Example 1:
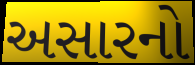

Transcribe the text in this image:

અસારનો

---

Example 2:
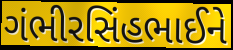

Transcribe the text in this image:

ગંભીરસિંહભાઈને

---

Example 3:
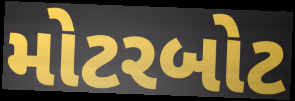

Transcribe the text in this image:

મોટરબોટ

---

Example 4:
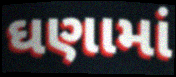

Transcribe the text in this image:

ઘણામાં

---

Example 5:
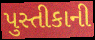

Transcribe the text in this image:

પુસ્તીકાની